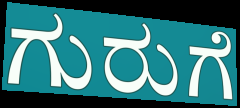
ಗುರುಗೆ